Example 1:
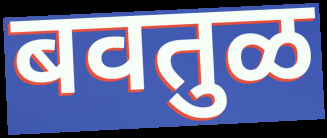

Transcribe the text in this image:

बवतुळ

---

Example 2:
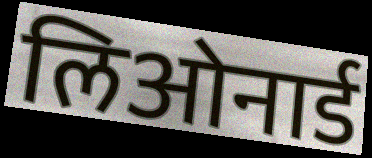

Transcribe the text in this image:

लिओनार्ड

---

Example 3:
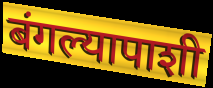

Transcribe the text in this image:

बंगल्यापाशी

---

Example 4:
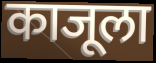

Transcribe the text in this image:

काजूला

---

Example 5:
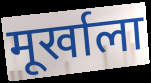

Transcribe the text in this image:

मूर्खाला